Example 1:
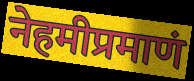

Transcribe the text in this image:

नेहमीप्रमाणं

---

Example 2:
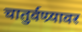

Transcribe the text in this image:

चातुर्वण्र्यावर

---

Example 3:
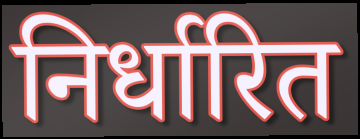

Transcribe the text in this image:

निर्धारित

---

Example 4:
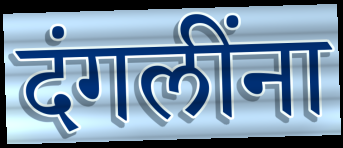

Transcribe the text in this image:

दंगलींना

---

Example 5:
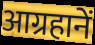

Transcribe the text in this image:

आग्रहानें